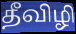
தீவிழி